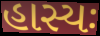
હાસ્યઃ